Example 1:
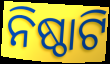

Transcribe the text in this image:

ନିଷ୍ଠାଟି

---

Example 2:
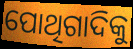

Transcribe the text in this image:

ପୋଥିଗାଦିକୁ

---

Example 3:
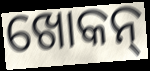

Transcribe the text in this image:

ଖୋକନ୍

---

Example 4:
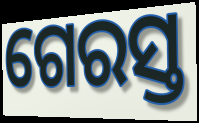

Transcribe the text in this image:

ଗେରସ୍ତ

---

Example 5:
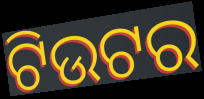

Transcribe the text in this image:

ଟିଉଟର